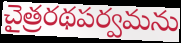
చైత్రరథపర్వమను